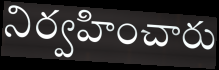
నిర్వహించారు